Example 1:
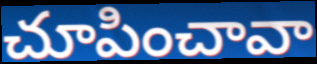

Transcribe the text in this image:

చూపించావా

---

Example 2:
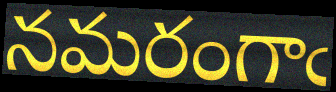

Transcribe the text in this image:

నమరంగాఁ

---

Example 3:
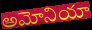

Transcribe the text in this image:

అమోనియా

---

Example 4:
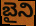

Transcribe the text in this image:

బైని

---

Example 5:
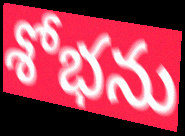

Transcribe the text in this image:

శోభను